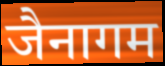
जैनागम